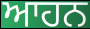
ਆਹਨ